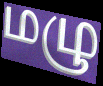
மழு